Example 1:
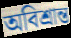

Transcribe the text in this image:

অবিশ্রান্ত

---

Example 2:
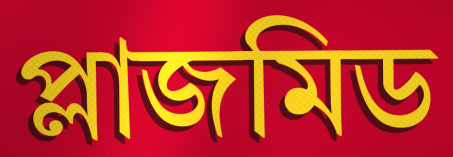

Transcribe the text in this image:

প্লাজমিড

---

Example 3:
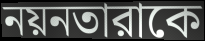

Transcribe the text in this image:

নয়নতারাকে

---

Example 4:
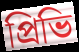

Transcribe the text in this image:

প্রিভি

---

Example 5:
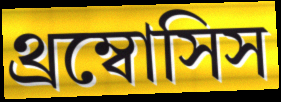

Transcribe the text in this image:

থ্রম্বোসিস